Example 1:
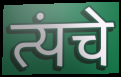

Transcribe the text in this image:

त्यंचे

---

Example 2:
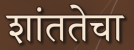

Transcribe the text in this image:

शांततेचा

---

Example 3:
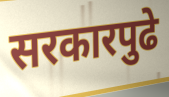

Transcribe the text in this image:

सरकारपुढे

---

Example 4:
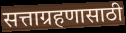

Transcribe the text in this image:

सत्ताग्रहणासाठी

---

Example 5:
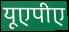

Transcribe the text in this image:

यूएपीए